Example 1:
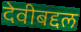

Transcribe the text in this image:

देवीबद्दल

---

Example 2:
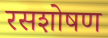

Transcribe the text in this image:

रसशोषण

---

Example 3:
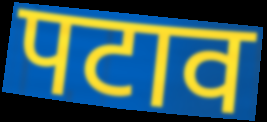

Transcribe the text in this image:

पटाव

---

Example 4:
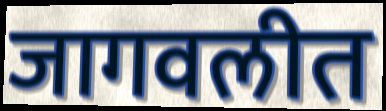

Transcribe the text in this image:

जागवलीत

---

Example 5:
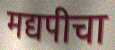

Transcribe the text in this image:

मद्यपीचा